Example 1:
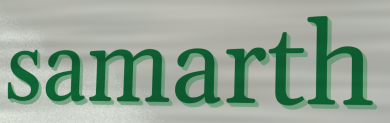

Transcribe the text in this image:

samarth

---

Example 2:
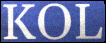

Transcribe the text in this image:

KOL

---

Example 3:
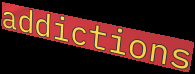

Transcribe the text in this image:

addictions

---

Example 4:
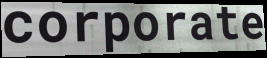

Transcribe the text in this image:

corporate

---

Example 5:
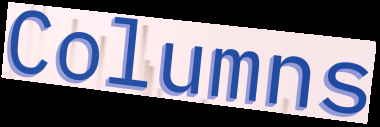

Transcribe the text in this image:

Columns